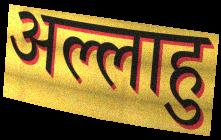
अल्लाहु